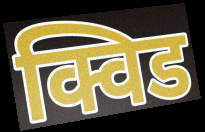
क्विड